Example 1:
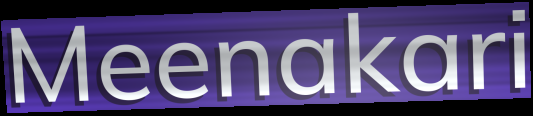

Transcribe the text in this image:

Meenakari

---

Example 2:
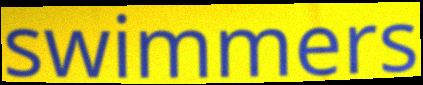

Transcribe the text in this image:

swimmers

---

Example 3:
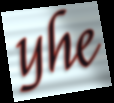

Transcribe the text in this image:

yhe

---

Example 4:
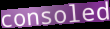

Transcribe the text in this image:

consoled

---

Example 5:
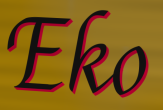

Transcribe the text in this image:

Eko